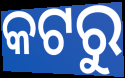
କଟରୁ